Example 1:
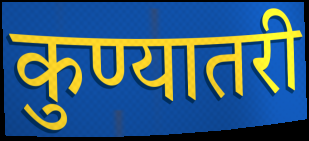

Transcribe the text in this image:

कुण्यातरी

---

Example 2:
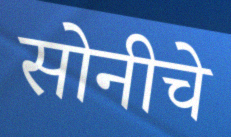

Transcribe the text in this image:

सोनीचे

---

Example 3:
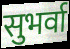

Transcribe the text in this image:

सुभर्वा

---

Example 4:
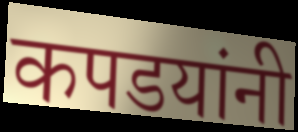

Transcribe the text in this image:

कपडयांनी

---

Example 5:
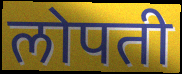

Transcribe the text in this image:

लोपती